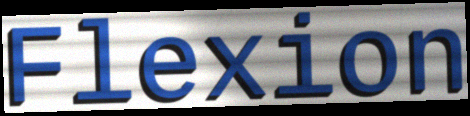
Flexion